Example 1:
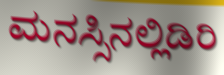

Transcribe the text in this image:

ಮನಸ್ಸಿನಲ್ಲಿಡಿರಿ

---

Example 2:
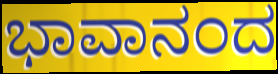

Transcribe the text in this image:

ಭಾವಾನಂದ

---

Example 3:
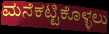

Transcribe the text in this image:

ಮನೆಕಟ್ಟಿಕೊಳ್ಳಲು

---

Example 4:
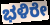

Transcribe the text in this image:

ಭಳಿರೇ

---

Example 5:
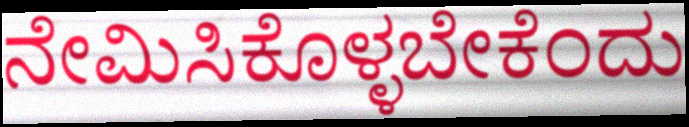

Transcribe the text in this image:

ನೇಮಿಸಿಕೊಳ್ಳಬೇಕೆಂದು